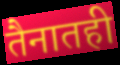
तैनातही